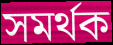
সমর্থক